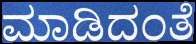
ಮಾಡಿದಂತೆ